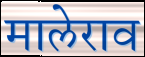
मालेराव